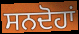
ਸਨਦੋਹਾਂ